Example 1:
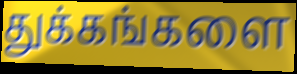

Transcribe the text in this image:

துக்கங்களை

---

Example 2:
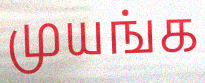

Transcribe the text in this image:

முயங்க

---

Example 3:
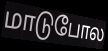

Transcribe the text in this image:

மாடுபோல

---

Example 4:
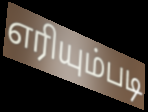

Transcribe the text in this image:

எரியும்படி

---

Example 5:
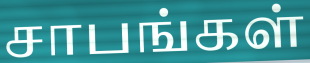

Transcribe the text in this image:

சாபங்கள்